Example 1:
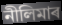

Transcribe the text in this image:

নীলিমাৰ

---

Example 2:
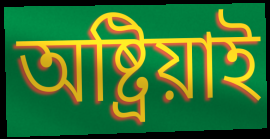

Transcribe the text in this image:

অষ্ট্ৰিয়াই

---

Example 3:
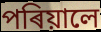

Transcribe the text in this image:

পৰিয়ালে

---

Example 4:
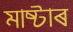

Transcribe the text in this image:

মাষ্টাৰ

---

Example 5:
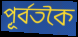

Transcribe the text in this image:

পূৰ্বতকৈ